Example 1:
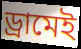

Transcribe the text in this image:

ড্রামেই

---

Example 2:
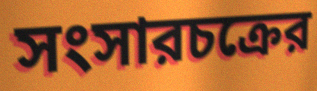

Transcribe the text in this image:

সংসারচক্রের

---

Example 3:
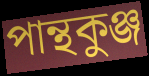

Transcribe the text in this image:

পান্থকুঞ্জ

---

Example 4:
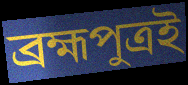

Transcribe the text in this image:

ব্রহ্মপুত্রই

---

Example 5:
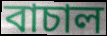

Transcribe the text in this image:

বাচাল